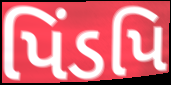
પિંડપિ